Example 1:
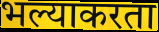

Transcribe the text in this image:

भल्याकरता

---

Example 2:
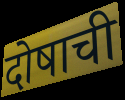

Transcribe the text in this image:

दोषाची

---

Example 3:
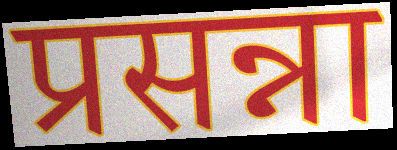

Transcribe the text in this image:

प्रसन्ना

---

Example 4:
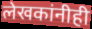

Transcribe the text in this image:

लेखकांनीही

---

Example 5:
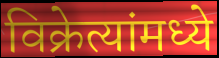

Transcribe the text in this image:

विक्रेत्यांमध्ये